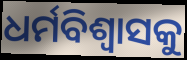
ଧର୍ମବିଶ୍ୱାସକୁ